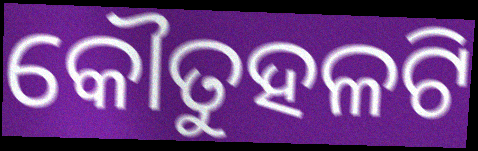
କୌତୁହଳଟି